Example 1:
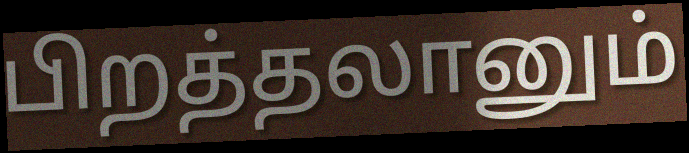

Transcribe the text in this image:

பிறத்தலானும்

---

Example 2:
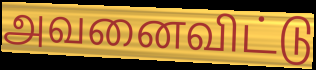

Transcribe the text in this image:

அவனைவிட்டு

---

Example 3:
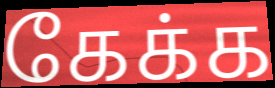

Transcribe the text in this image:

கேக்க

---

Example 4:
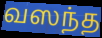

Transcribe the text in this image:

வஸந்த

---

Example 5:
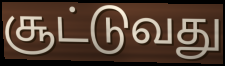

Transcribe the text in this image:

சூட்டுவது